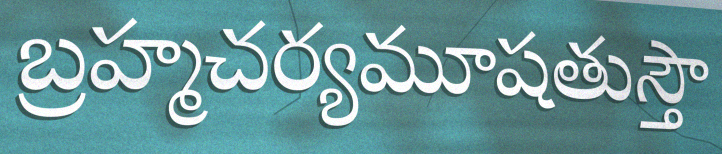
బ్రహ్మచర్యమూషతుస్తౌ